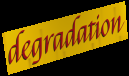
degradation